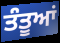
ਤੰਤੂਆਂ